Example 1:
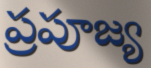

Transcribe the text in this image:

ప్రపూజ్య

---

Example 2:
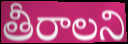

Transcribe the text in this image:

తీరాలని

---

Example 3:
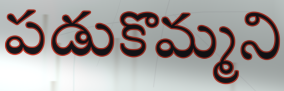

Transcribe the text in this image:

పడుకొమ్మని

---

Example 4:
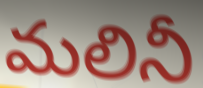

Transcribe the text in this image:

మలినీ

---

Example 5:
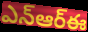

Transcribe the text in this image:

ఎన్ఆర్ఈ